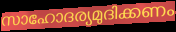
സാഹോദര്യമുദിക്കണം